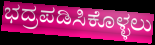
ಭದ್ರಪಡಿಸಿಕೊಳ್ಳಲು